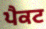
ਪੈਕਟ